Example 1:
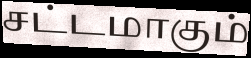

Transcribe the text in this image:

சட்டமாகும்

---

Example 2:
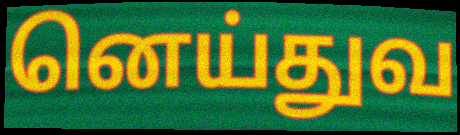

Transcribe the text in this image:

னெய்துவ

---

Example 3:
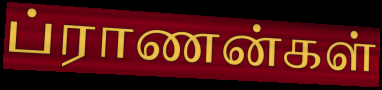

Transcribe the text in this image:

ப்ராணன்கள்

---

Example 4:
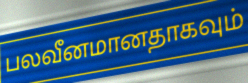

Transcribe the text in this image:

பலவீனமானதாகவும்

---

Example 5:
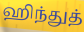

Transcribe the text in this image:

ஹிந்துத்